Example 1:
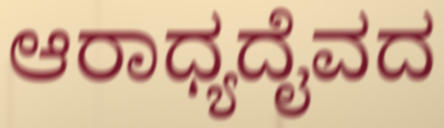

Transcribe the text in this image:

ಆರಾಧ್ಯದೈವದ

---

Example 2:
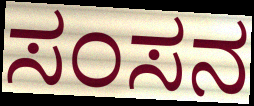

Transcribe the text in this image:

ಸಂಸನ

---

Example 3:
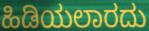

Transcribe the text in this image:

ಹಿಡಿಯಲಾರದು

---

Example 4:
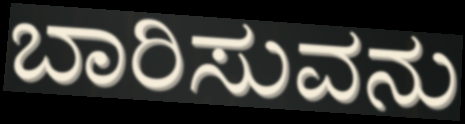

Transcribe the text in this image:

ಬಾರಿಸುವನು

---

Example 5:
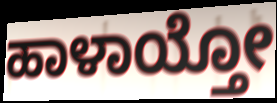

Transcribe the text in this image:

ಹಾಳಾಯ್ತೋ